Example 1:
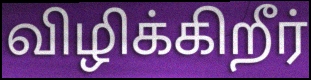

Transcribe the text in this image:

விழிக்கிறீர்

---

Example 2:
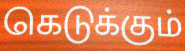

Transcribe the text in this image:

கெடுக்கும்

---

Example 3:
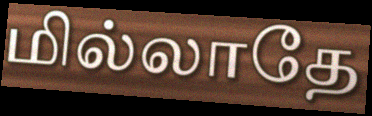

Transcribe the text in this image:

மில்லாதே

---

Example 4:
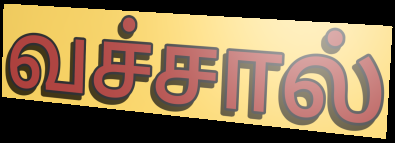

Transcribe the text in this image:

வச்சால்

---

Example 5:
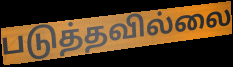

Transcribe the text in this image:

படுத்தவில்லை